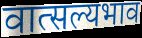
वात्सल्यभाव